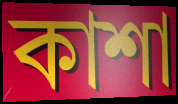
কাশা